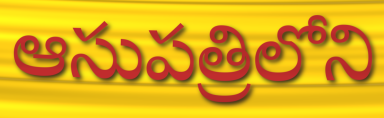
ఆసుపత్రిలోని